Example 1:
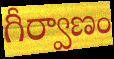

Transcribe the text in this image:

గీర్వాణం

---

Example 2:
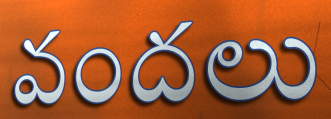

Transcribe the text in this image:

వందలు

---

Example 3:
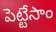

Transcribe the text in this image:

పెట్టేసాం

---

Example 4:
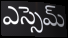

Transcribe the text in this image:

ఎస్సెమ్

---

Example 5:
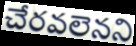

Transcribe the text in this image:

చేరవలెనని